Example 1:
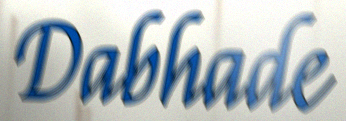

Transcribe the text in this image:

Dabhade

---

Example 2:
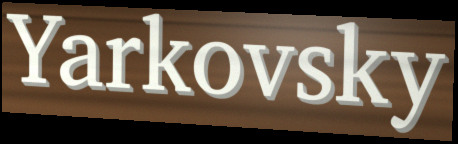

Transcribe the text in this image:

Yarkovsky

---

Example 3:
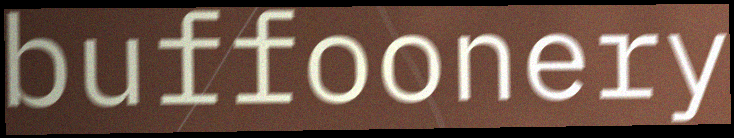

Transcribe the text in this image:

buffoonery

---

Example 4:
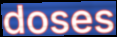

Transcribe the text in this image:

doses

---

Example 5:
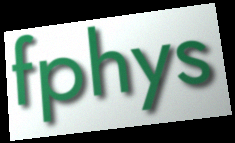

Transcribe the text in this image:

fphys